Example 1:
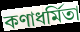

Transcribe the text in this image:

কণাধর্মিতা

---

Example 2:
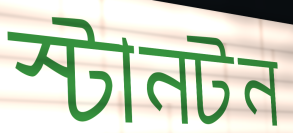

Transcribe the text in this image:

স্টানটন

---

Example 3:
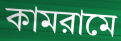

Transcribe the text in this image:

কামরামে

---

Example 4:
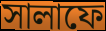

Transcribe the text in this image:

সালাফে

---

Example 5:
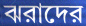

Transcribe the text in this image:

ঝরাদের